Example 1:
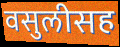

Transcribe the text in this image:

वसुलीसह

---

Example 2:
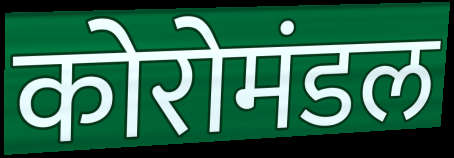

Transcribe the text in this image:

कोरोमंडल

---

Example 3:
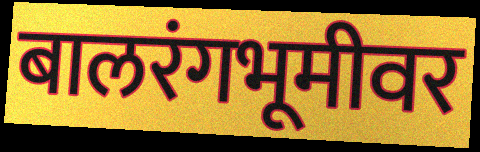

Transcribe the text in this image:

बालरंगभूमीवर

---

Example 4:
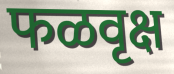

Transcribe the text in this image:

फळवृक्ष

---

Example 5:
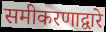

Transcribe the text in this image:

समीकरणाद्वारे